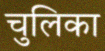
चुलिका